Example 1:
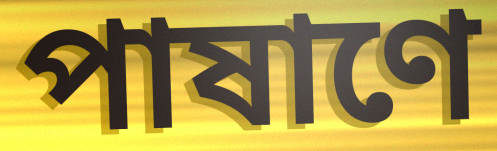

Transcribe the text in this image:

পাষাণে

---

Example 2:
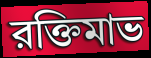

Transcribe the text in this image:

রক্তিমাভ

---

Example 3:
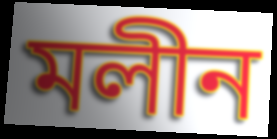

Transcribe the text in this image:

মলীন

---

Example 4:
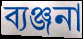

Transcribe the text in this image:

ব্যঞ্জনা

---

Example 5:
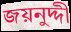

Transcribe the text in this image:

জয়নুদ্দী